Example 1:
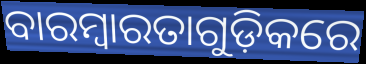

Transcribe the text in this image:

ବାରମ୍ବାରତାଗୁଡ଼ିକରେ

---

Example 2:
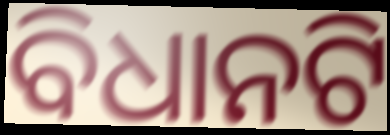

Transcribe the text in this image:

ବିଧାନଟି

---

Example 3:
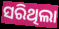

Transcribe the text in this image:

ସରିଥିଲା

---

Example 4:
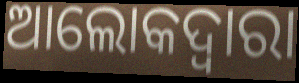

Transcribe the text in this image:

ଆଲୋକଦ୍ୱାରା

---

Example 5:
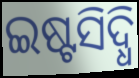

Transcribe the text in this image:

ଇଷ୍ଟସିଦ୍ଧି